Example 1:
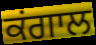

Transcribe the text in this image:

ਕਂਗਾਲ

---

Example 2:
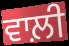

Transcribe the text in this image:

ਵਾਲ਼ੀ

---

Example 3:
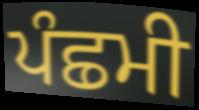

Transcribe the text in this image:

ਪੰਛਮੀ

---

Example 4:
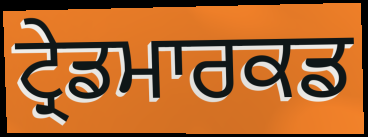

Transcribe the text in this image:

ਟ੍ਰੇਡਮਾਰਕਡ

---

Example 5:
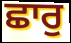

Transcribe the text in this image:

ਛਾਰੁ